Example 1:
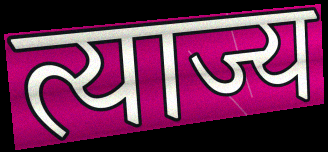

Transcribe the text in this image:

त्याज्य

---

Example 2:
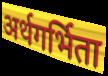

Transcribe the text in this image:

अर्थगर्भिता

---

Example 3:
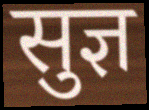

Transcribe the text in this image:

सुज्ञ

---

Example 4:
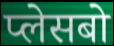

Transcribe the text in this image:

प्लेसबो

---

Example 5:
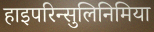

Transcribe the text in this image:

हाइपरिन्सुलिनिमिया